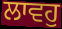
ਲਾਵਹੁ